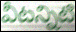
వీటన్నిటి